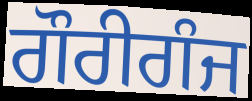
ਗੌਰੀਗੰਜ